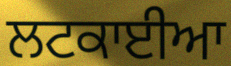
ਲਟਕਾਈਆ